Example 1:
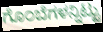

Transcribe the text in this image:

ಗೊಂಬೆಗಳನ್ನಿಟ್ಟು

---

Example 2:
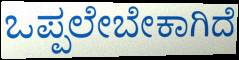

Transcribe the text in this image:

ಒಪ್ಪಲೇಬೇಕಾಗಿದೆ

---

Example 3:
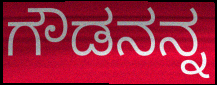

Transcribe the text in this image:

ಗೌಡನನ್ನ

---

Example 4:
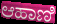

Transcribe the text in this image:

ಆಹಾಣಿ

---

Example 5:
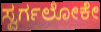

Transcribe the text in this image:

ಸ್ವರ್ಗಲೋಕೇ